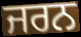
ਜਰਨ